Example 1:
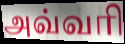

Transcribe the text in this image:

அவ்வரி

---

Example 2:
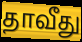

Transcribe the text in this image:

தாவீது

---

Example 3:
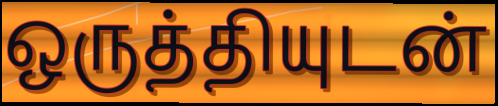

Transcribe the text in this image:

ஒருத்தியுடன்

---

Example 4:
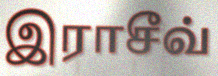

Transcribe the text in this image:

இராசீவ்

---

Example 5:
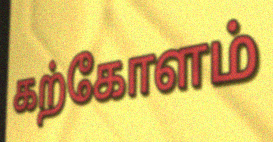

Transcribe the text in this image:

கற்கோளம்